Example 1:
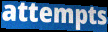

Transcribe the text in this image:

attempts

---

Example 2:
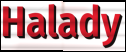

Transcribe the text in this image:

Halady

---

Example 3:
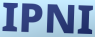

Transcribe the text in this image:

IPNI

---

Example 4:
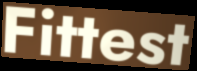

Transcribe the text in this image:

Fittest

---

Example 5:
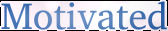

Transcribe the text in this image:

Motivated